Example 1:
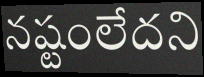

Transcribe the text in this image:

నష్టంలేదని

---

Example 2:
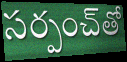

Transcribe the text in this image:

సర్పంచ్‌తో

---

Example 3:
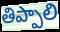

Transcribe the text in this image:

తిప్పాలి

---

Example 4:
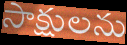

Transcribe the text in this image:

సాక్షులను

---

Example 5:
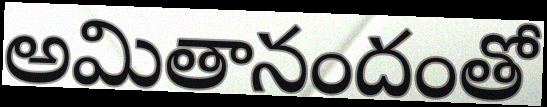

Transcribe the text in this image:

అమితానందంతో